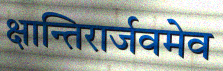
क्षान्तिरार्जवमेव